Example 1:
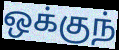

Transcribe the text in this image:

ஒக்குந்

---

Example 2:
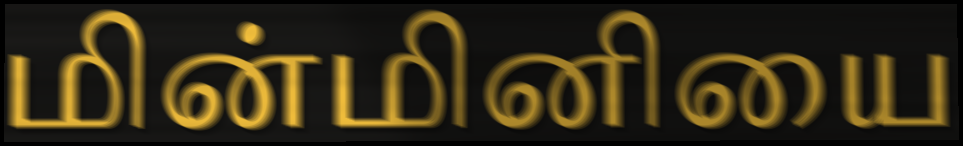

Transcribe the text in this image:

மின்மினியை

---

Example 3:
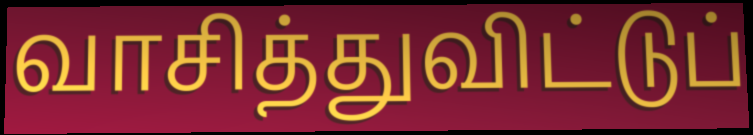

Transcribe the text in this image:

வாசித்துவிட்டுப்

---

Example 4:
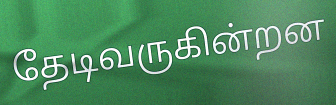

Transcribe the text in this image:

தேடிவருகின்றன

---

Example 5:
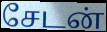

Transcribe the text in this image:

சேடன்